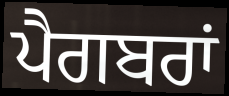
ਪੈਗਬਰਾਂ